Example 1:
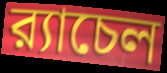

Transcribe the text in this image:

র‍্যাচেল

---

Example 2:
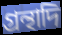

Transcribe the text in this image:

গ্রন্থাদি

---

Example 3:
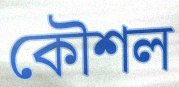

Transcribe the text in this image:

কৌশল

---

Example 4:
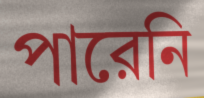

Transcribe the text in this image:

পারেনি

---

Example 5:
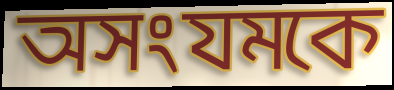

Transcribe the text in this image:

অসংযমকে